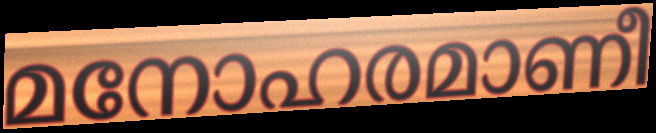
മനോഹരമാണീ